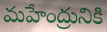
మహేంద్రునికి